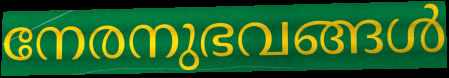
നേരനുഭവങ്ങൾ